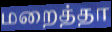
மறைத்தா